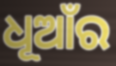
ଧୂଆଁର